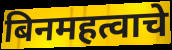
बिनमहत्वाचे